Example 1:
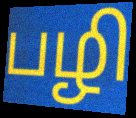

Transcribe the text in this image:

பழி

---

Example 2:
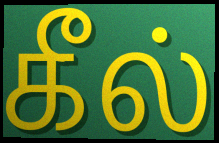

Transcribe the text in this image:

கீல்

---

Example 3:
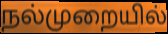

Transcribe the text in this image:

நல்முறையில்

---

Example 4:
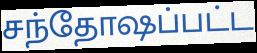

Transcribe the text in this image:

சந்தோஷப்பட்ட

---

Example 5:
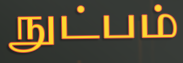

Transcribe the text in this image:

நுட்பம்